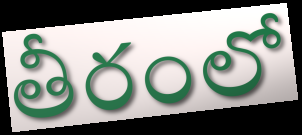
తీరంలో